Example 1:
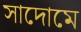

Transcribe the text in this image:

সাদোমে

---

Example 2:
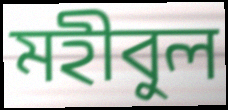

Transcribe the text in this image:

মহীবুল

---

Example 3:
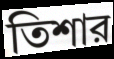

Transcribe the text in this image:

তিশার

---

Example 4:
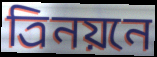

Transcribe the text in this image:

ত্রিনয়নে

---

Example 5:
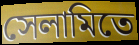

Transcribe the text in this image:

সেলামিতে